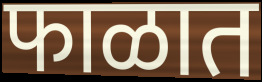
फाळात